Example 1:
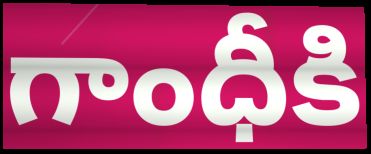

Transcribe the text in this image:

గాంధీకి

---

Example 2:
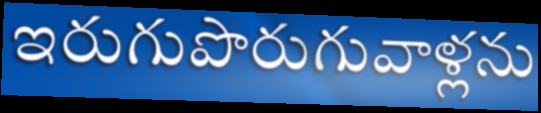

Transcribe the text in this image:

ఇరుగుపొరుగువాళ్లను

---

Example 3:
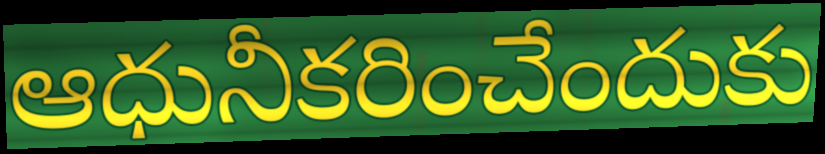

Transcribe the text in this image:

ఆధునీకరించేందుకు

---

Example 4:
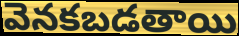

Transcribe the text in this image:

వెనకబడతాయి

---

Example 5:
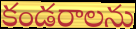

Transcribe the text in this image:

కండరాలను